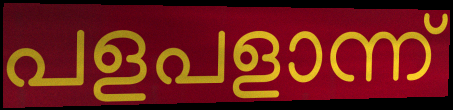
പളപളാന്ന്